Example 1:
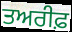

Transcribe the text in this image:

ਤਅਰੀਫ਼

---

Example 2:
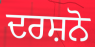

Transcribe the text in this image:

ਦਰਸ਼ਨੋ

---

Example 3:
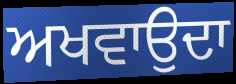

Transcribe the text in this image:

ਅਖਵਾਉਦਾ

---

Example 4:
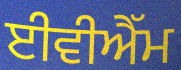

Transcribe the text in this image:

ਈਵੀਐੱਮ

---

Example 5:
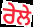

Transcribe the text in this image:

ਰੇਲੇ